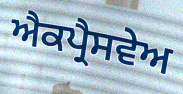
ਐਕਪ੍ਰੈਸਵੇਅ